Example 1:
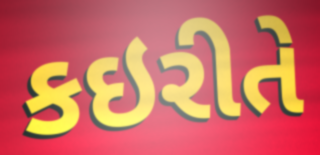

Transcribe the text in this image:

કઇરીતે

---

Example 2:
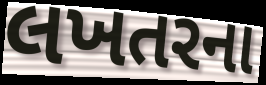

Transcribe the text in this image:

લખતરના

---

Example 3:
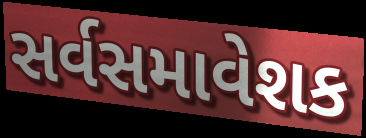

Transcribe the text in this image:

સર્વસમાવેશક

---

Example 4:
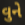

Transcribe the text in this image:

વુને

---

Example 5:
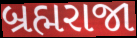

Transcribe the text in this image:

બ્રહ્મરાજા